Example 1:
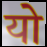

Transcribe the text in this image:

यो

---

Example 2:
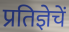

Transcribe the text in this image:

प्रतिज्ञेचें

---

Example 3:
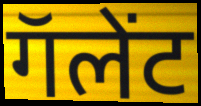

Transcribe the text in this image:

गॅलेंट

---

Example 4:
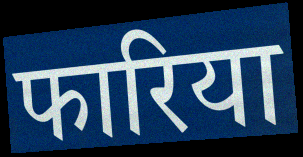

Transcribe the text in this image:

फारिया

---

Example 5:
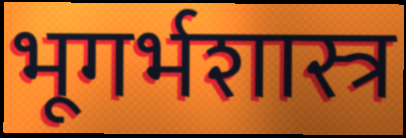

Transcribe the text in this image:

भूगर्भशास्त्र